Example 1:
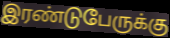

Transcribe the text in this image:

இரண்டுபேருக்கு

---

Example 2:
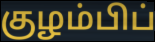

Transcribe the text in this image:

குழம்பிப்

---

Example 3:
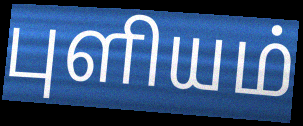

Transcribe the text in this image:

புளியம்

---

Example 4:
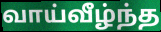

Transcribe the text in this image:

வாய்வீழ்ந்த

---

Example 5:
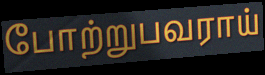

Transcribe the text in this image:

போற்றுபவராய்